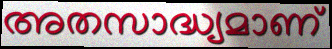
അതസാദ്ധ്യമാണ്